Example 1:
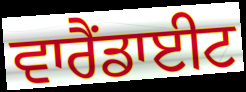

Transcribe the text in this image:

ਵਾਰੈਂਡਾਈਟ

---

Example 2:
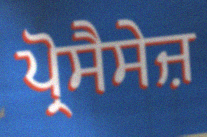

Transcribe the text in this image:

ਪ੍ਰੋਸੈਸੇਜ਼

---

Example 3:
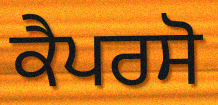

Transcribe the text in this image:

ਕੈਪਰਸੋ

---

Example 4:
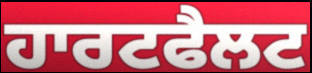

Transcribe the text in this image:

ਹਾਰਟਫੈਲਟ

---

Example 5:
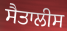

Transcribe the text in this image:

ਸੈਤਾਲੀਸ